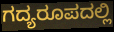
ಗದ್ಯರೂಪದಲ್ಲಿ